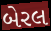
બેરલ